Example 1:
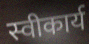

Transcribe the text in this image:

स्‍वीकार्य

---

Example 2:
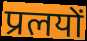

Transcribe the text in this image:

प्रलयों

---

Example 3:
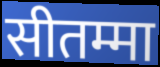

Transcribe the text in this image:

सीतम्मा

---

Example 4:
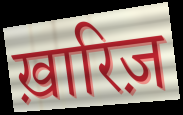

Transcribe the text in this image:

ख़ारिज़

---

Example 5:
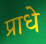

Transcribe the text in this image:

प्राधे